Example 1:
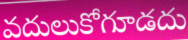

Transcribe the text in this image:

వదులుకోగూడదు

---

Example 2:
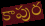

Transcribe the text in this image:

కాపుర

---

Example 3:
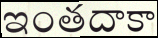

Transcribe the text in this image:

ఇంతదాకా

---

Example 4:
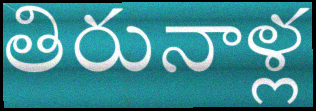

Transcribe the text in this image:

తిరునాళ్ల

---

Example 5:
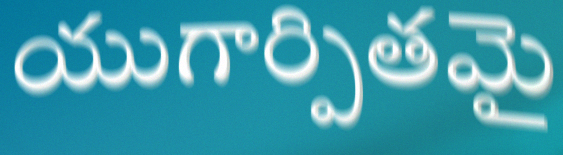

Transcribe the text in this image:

యుగార్పితమై